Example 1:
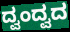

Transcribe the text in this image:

ದ್ವಂದ್ವದ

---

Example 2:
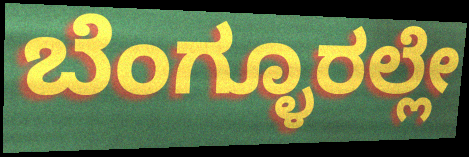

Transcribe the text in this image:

ಬೆಂಗ್ಳೂರಲ್ಲೇ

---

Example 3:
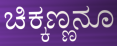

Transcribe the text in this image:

ಚಿಕ್ಕಣ್ಣನೂ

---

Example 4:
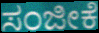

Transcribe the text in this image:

ಸಂಜೀಕೆ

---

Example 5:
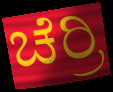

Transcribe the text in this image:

ಚೆರ‍್ರಿ